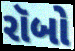
રૉબો